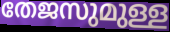
തേജസുമുള്ള